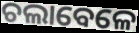
ଚଲାବେଳେ